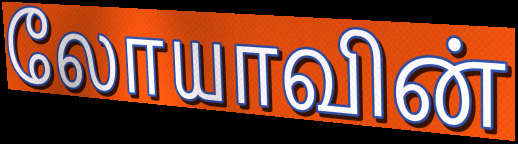
லோயாவின்